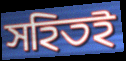
সহিতই